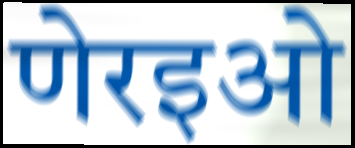
णेरइओ